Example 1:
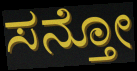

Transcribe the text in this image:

ಸನ್ತೋ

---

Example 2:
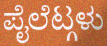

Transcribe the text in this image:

ಪೈಲೆಟ್ಗಳು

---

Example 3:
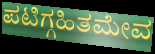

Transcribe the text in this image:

ಪಟಿಗ್ಗಹಿತಮೇವ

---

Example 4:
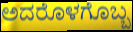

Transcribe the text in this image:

ಅದರೊಳಗೊಬ್ಬ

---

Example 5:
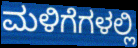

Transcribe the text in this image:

ಮಳಿಗೆಗಳಲ್ಲಿ